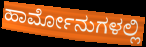
ಹಾರ್ಮೋನುಗಳಲ್ಲಿ